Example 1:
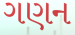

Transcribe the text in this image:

ગણન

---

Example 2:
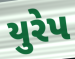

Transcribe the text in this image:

યુરેપ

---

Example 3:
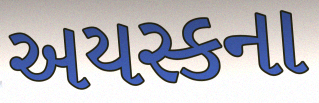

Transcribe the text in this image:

અયસ્કના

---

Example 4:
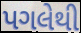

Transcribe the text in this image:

પગલેથી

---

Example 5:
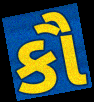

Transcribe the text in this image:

કૌ